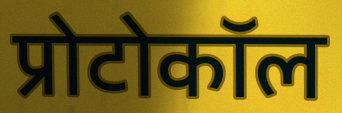
प्रोटोकॉल